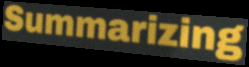
Summarizing